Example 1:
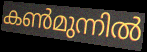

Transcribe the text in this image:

കൺമുന്നിൽ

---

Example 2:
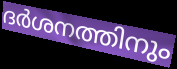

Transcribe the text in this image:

ദർശനത്തിനും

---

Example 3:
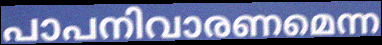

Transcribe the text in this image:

പാപനിവാരണമെന്ന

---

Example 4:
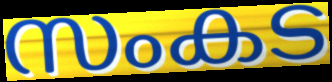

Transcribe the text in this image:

സംകട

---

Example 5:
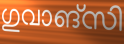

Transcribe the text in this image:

ഗുവാങ്സി